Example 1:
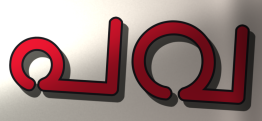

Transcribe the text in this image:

പവ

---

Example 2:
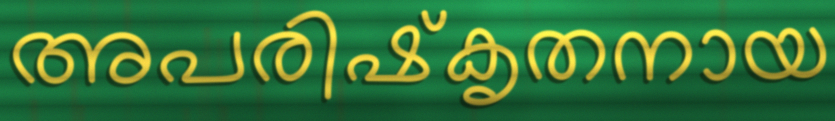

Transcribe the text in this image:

അപരിഷ്‌കൃതനായ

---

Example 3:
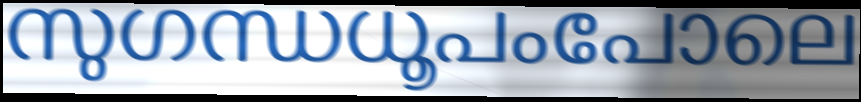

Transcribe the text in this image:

സുഗന്ധധൂപംപോലെ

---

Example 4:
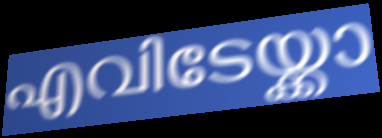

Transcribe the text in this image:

എവിടേയ്ക്കാ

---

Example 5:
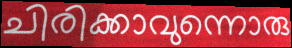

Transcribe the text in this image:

ചിരിക്കാവുന്നൊരു